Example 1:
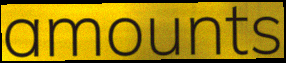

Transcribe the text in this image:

amounts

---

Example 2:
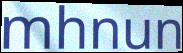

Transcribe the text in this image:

mhnun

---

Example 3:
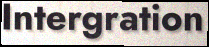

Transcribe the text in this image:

Intergration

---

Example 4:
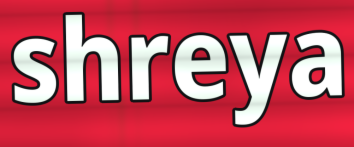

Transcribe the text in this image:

shreya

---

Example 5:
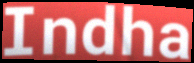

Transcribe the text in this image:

Indha